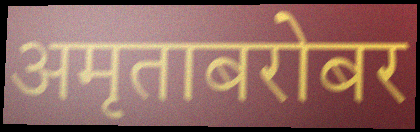
अमृताबरोबर